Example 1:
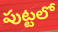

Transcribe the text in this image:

పుట్టలో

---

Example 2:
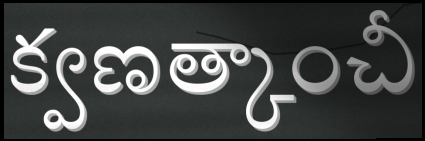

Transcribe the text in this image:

క్వణత్కాంచీ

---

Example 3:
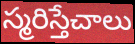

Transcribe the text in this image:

స్మరిస్తేచాలు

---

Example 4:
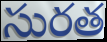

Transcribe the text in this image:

సురత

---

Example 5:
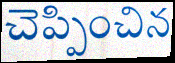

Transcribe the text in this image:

చెప్పించిన